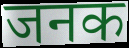
जनक